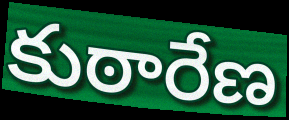
కుఠారేణ